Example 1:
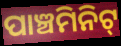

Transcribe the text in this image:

ପାଞ୍ଚମିନିଟ୍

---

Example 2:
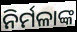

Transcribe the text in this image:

ନିର୍ମଳାଙ୍କ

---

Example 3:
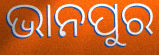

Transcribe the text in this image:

ଭାନପୁର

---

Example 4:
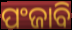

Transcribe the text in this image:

ପଂଜାବି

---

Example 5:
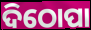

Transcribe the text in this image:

ଦିଠୋପା